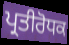
ਪ੍ਰਤੀਰੋਧਕ